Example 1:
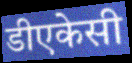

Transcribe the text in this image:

डीएकेसी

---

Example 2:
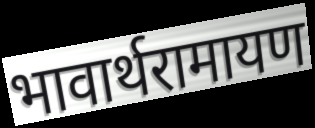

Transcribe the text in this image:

भावार्थरामायण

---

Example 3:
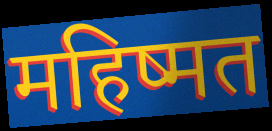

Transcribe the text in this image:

महिष्मत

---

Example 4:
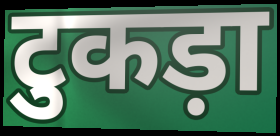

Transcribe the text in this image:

टुकड़ा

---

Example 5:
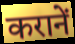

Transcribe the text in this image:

करानें